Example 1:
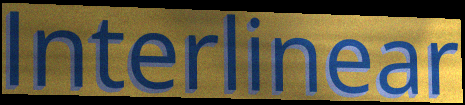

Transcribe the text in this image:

Interlinear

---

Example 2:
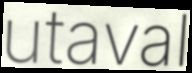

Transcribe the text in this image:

utaval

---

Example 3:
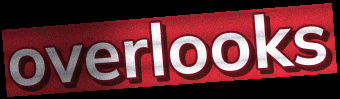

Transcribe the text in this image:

overlooks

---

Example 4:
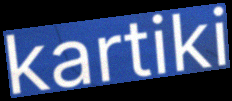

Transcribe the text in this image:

kartiki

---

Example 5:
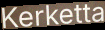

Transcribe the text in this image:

Kerketta